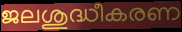
ജലശുദ്ധീകരണ